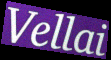
Vellai